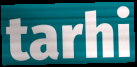
tarhi